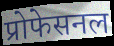
प्रोफेसनल